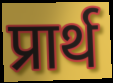
प्रार्थ